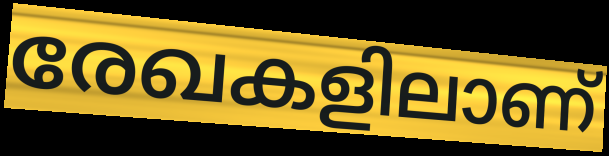
രേഖകളിലാണ്